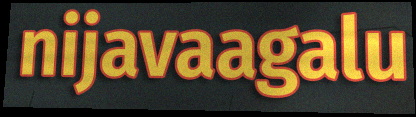
nijavaagalu